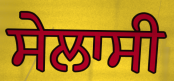
ਸੇਲਾਸੀ